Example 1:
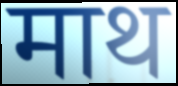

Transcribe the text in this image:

माथ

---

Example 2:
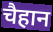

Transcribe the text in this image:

चैहान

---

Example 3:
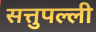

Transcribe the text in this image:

सत्तुपल्ली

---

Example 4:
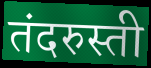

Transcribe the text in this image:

तंदरुस्ती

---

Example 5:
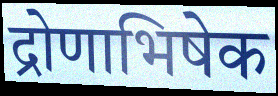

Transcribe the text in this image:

द्रोणाभिषेक